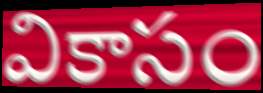
వికాసం